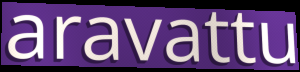
aravattu